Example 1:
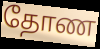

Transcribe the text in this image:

தோண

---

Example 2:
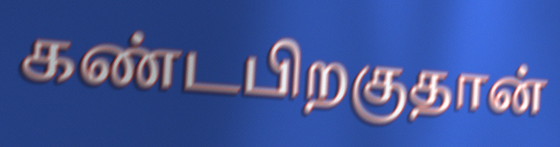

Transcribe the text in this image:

கண்டபிறகுதான்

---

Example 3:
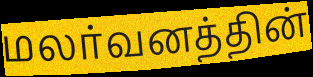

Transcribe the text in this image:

மலர்வனத்தின்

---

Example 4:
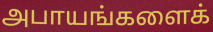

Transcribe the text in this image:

அபாயங்களைக்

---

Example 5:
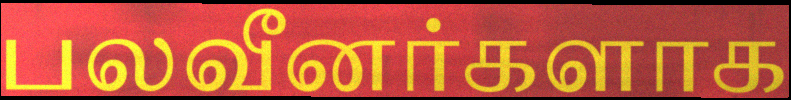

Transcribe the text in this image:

பலவீனர்களாக